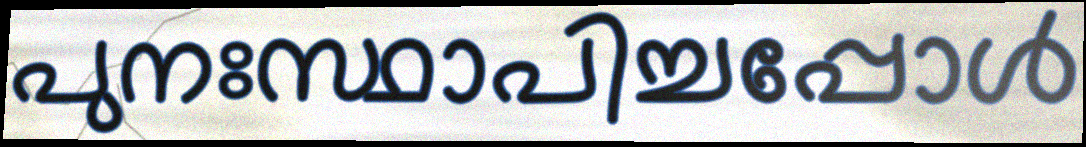
പുനഃസ്ഥാപിച്ചപ്പോൾ